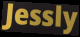
Jessly